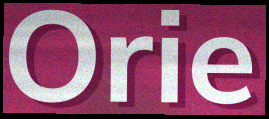
Orie